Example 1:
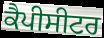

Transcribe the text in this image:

ਕੈਪੀਸੀਟਰ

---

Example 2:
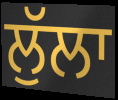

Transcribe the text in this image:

ਲੁੱਲਾ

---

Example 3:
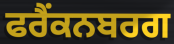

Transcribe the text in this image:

ਫਰੈਂਕਨਬਰਗ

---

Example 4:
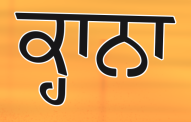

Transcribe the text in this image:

ਕ੍ਹਾਨਾ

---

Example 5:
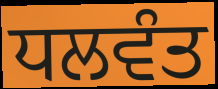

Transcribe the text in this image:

ਧਲਵੰਤ